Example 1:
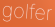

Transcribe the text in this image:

golfer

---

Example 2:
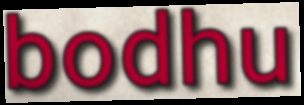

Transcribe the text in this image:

bodhu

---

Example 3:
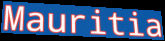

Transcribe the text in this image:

Mauritia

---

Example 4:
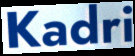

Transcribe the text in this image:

Kadri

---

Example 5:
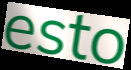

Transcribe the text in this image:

esto